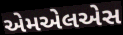
એમએલએસ